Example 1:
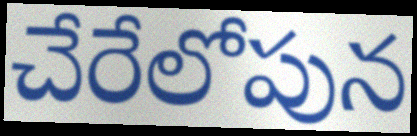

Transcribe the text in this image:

చేరేలోపున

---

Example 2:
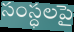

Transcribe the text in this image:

సంస్ధలపై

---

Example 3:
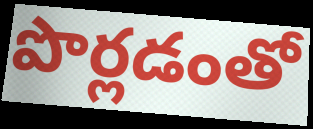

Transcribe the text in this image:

పొర్లడంతో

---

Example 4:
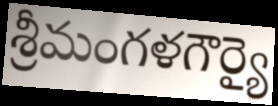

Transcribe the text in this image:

శ్రీమంగళగౌర్యై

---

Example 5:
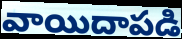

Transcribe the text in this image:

వాయిదాపడి